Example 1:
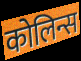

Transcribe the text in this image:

कोलिन्स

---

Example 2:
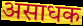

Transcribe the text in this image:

असाधक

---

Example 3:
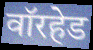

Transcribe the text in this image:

वॉरहेड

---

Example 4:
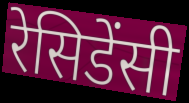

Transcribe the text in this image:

रेसिडेंसी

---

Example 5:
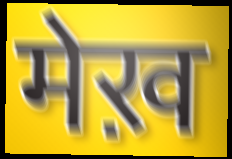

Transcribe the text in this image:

मेख़